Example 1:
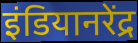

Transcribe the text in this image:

इंडियानरेंद्र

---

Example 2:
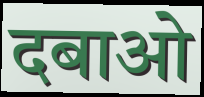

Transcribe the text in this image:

दबाओ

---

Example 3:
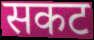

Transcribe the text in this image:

सकट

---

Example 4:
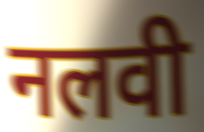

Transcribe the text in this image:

नलवी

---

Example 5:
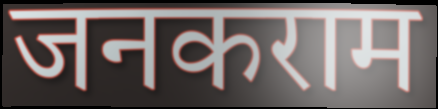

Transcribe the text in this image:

जनकराम